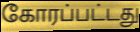
கோரப்பட்டது